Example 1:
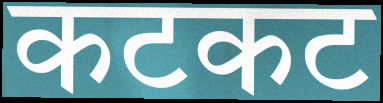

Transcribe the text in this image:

कटकट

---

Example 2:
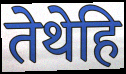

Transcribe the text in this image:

तेथेहि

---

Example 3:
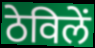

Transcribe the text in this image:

ठेविलें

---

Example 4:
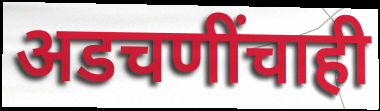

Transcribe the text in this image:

अडचणींचाही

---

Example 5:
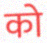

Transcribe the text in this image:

को